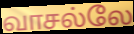
வாசல்லே